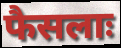
फैसलाः